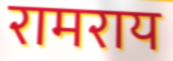
रामराय